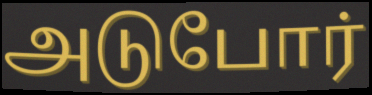
அடுபோர்